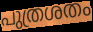
പുത്രശതം